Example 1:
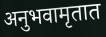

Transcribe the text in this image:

अनुभवामृतात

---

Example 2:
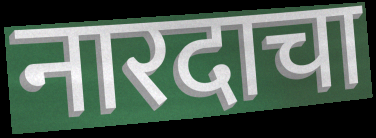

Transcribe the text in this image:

नारदाचा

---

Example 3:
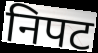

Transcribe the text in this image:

निपट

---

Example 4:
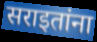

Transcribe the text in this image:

सराइतांना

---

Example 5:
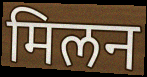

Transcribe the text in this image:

मिलन